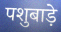
पशुबाड़े